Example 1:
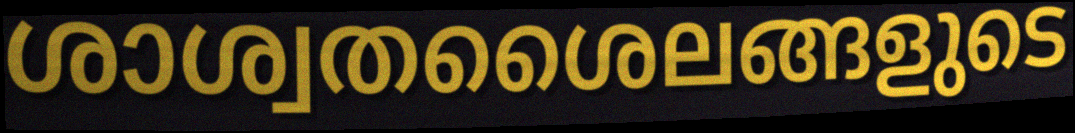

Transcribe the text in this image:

ശാശ്വതശൈലങ്ങളുടെ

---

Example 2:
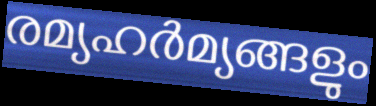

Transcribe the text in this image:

രമ്യഹർമ്യങ്ങളും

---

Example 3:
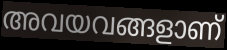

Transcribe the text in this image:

അവയവങ്ങളാണ്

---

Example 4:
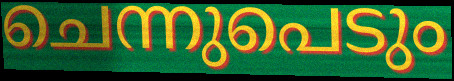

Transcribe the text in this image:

ചെന്നുപെടും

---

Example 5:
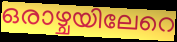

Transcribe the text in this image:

ഒരാഴ്ചയിലേറെ